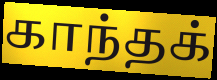
காந்தக்